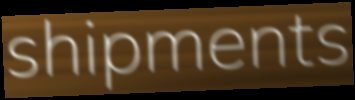
shipments